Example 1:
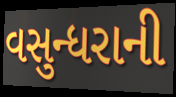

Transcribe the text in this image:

વસુન્ધરાની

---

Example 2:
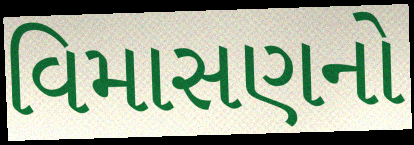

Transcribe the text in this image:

વિમાસણનો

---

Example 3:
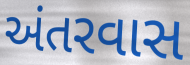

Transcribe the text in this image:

અંતરવાસ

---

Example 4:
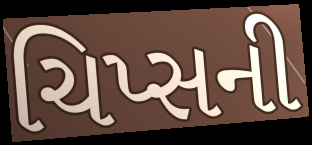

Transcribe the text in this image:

ચિપ્સની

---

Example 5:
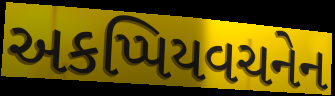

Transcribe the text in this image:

અકપ્પિયવચનેન